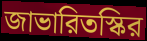
জাভারিতস্কির